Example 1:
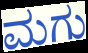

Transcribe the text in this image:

ಮಗು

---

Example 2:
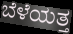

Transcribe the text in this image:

ಬೆಳೆಯತ್ತ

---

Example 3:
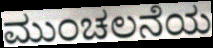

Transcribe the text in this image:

ಮುಂಚಲನೆಯ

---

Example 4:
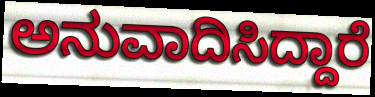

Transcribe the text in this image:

ಅನುವಾದಿಸಿದ್ದಾರೆ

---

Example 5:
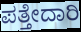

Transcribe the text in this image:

ಪತ್ತೇದಾರಿ